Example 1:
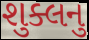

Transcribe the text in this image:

શુક્લનુ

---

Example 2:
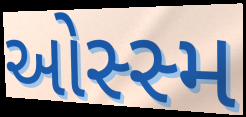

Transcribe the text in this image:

ઓસ્સ્મ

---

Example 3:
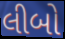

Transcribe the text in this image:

લીબો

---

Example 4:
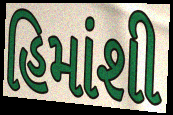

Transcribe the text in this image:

હિમાંશી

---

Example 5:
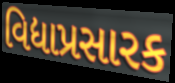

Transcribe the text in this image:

વિદ્યાપ્રસારક